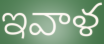
ఇవాళ